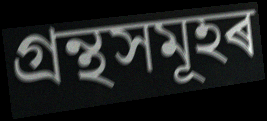
গ্ৰন্থসমূহৰ